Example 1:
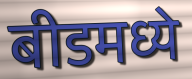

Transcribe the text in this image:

बीडमध्ये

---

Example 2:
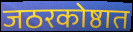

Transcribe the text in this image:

जठरकोष्ठात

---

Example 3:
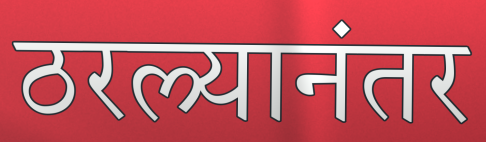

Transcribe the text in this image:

ठरल्यानंतर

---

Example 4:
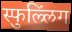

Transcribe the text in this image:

स्फुल्लिंग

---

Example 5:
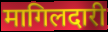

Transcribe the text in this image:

मागिलदारी